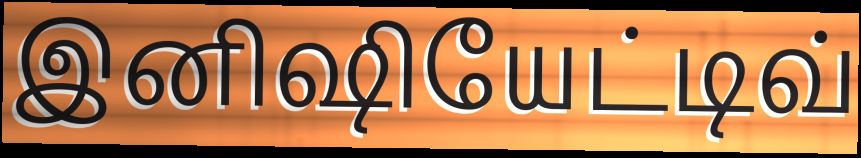
இனிஷியேட்டிவ்